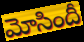
మోసిందీ